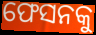
ଫେସନକୁ